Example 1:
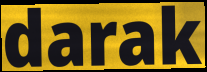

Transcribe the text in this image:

darak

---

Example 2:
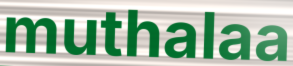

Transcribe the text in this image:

muthalaa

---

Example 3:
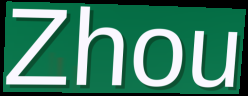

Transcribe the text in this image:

Zhou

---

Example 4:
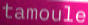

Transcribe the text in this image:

tamoule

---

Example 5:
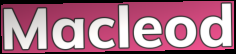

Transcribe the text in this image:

Macleod